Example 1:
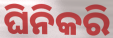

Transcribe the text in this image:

ଘିନିକରି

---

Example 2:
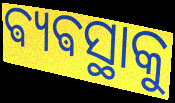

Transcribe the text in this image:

ଵ୍ୟଵସ୍ଥାକୁ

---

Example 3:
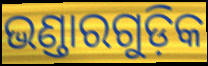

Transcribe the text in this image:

ଭଣ୍ଡାରଗୁଡ଼ିକ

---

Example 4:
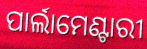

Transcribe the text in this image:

ପାର୍ଲାମେଣ୍ଟାରୀ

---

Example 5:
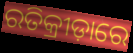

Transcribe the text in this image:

ରତିକ୍ରୀଡ଼ାରେ